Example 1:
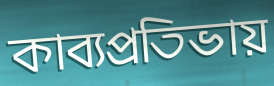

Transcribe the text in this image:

কাব্যপ্রতিভায়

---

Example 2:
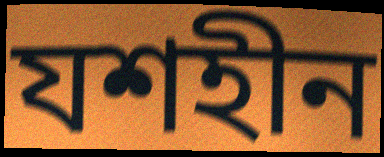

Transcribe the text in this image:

যশহীন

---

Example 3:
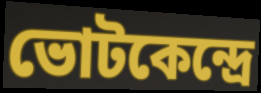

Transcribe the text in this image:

ভোটকেন্দ্রে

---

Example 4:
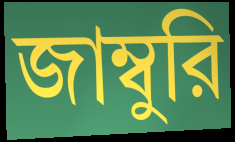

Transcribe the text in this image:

জাম্বুরি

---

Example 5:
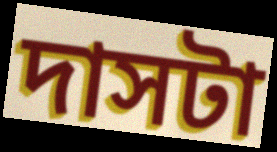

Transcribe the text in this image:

দাসটা